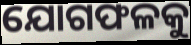
ଯୋଗଫଳକୁ